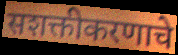
सशक्तीकरणाचे